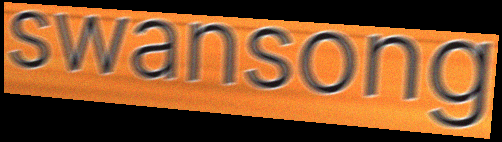
swansong